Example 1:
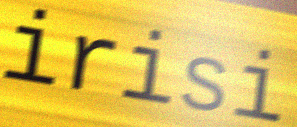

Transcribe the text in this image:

irisi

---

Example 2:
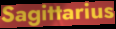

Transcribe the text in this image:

Sagittarius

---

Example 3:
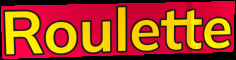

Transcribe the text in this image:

Roulette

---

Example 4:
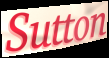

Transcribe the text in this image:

Sutton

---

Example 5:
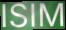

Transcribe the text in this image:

ISIM